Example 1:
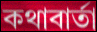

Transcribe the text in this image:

কথাবাৰ্তা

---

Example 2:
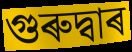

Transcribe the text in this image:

গুৰুদ্বাৰ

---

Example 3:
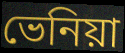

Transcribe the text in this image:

ভেনিয়া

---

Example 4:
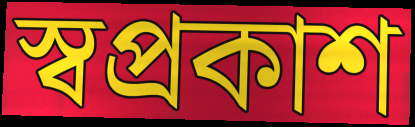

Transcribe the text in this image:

স্বপ্ৰকাশ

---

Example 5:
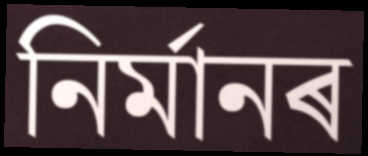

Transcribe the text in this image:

নিৰ্মানৰ